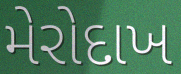
મેરોદાખ